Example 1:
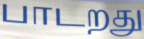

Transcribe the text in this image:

பாடறது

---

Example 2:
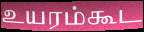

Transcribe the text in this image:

உயரம்கூட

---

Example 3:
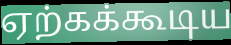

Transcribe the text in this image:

ஏற்கக்கூடிய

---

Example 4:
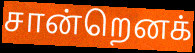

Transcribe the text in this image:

சான்றெனக்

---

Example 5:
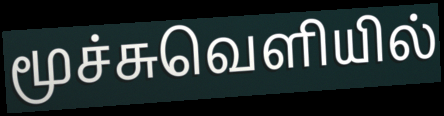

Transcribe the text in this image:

மூச்சுவெளியில்